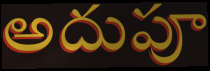
అదుపూ